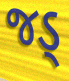
જડ્